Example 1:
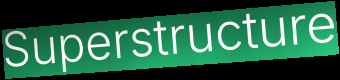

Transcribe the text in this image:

Superstructure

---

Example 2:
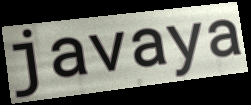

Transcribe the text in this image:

javaya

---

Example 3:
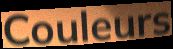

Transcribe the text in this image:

Couleurs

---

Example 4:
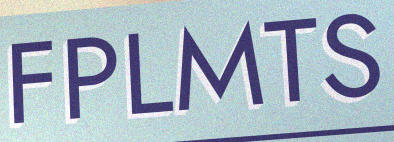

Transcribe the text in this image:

FPLMTS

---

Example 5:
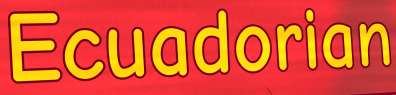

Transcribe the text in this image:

Ecuadorian